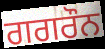
ਗਗਰੌਨ